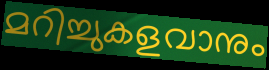
മറിച്ചുകളവാനും